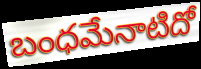
బంధమేనాటిదో